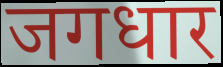
जगधार